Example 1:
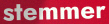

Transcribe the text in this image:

stemmer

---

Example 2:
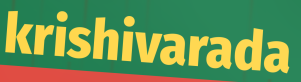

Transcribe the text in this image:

krishivarada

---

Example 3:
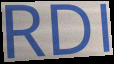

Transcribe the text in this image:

RDI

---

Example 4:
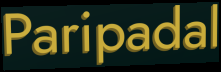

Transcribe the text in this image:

Paripadal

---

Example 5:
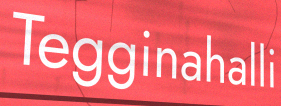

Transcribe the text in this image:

Tegginahalli